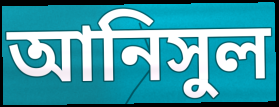
আনিসুল